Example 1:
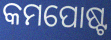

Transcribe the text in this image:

କମପୋଷ୍ଟ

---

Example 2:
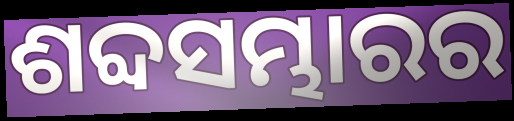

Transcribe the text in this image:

ଶବ୍ଦସମ୍ଭାରର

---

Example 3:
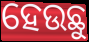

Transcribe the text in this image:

ହେଉଛୁ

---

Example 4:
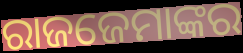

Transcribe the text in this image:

ରାଜଜେମାଙ୍କର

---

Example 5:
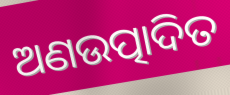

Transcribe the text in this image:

ଅଣଉତ୍ପାଦିତ